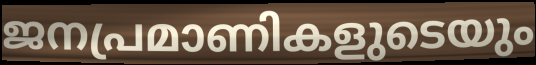
ജനപ്രമാണികളുടെയും